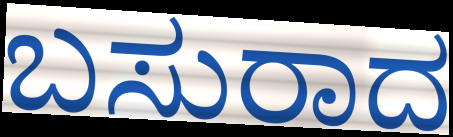
ಬಸುರಾದ